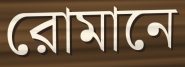
রোমানে